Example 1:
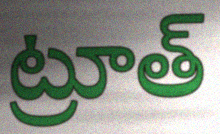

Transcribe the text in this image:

ట్రూత్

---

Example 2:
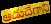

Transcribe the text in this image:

ఆడుదేగాని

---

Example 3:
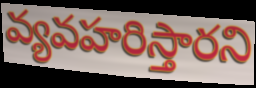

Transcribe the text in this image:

వ్యవహరిస్తారని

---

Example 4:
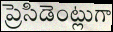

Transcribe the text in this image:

ప్రెసిడెంట్లుగా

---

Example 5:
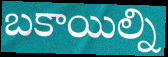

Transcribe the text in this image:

బకాయిల్ని